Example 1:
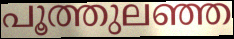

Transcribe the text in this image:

പൂത്തുലഞ്ഞ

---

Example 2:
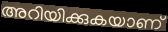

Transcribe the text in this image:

അറിയിക്കുകയാണ്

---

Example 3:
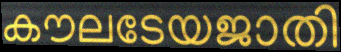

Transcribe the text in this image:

കൗലടേയജാതി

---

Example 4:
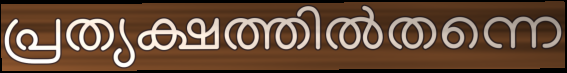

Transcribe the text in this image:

പ്രത്യക്ഷത്തിൽതന്നെ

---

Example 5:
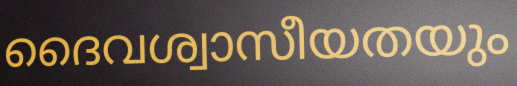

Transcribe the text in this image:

ദൈവശ്വാസീയതയും